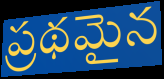
ప్రథమైన